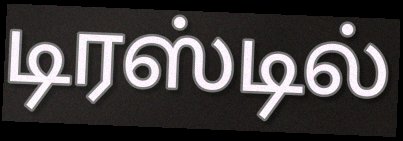
டிரஸ்டில்